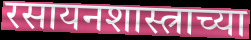
रसायनशास्त्राच्या